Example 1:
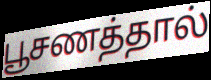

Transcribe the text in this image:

பூசணத்தால்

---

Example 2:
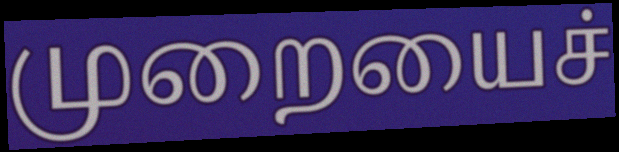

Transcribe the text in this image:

முறையைச்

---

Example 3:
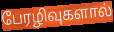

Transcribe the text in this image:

பேரழிவுகளால்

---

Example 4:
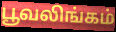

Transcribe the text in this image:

பூவலிங்கம்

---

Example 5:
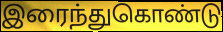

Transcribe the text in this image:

இரைந்துகொண்டு